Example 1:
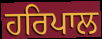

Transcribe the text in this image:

ਹਰਿਪਾਲ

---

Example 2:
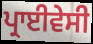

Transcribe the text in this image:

ਪ੍ਰਾਈਵੇਸੀ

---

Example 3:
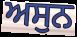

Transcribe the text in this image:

ਅਸੁਨ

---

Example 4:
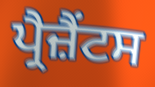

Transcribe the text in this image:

ਪ੍ਰੈਜ਼ੈਂਟਸ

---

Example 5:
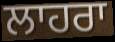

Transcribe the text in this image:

ਲਾਹਰਾ